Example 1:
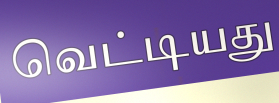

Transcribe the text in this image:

வெட்டியது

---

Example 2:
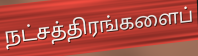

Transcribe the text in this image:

நட்சத்திரங்களைப்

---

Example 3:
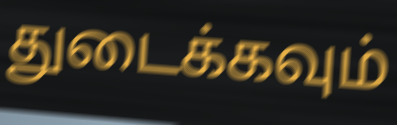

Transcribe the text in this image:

துடைக்கவும்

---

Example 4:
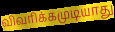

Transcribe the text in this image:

விவரிக்கமுடியாது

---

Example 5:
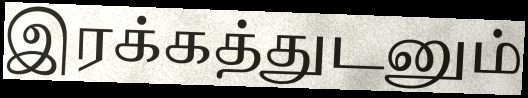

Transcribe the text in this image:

இரக்கத்துடனும்